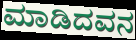
ಮಾಡಿದವನ